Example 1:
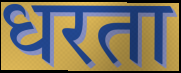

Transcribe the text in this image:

धरता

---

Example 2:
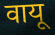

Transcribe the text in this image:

वायू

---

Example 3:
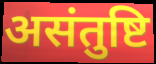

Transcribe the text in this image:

असंतुष्टि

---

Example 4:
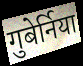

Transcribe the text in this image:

गुबेर्निया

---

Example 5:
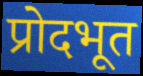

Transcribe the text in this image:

प्रोदभूत